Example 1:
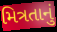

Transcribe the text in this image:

મિત્રતાનું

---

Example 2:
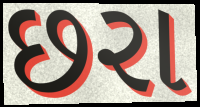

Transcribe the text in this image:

છરા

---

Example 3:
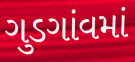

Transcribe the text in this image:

ગુડગાંવમાં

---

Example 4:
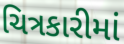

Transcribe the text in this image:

ચિત્રકારીમાં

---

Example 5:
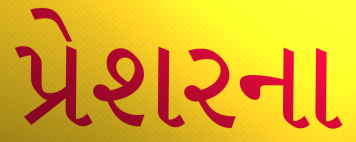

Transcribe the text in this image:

પ્રેશરના